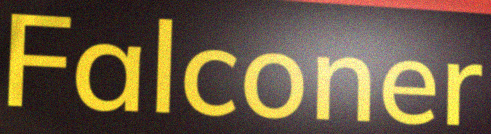
Falconer